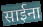
साईना